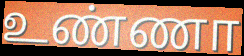
உண்ணா